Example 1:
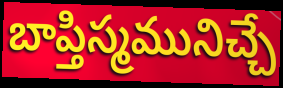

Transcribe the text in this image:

బాప్తిస్మమునిచ్చే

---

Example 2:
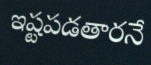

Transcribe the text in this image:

ఇష్టపడతారనే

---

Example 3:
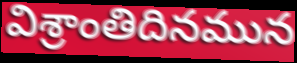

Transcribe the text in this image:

విశ్రాంతిదినమున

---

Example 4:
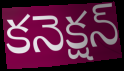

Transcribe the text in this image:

కనెక్షన్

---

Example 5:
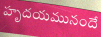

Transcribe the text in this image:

హృదయమునందే